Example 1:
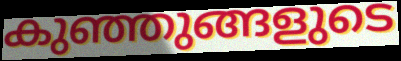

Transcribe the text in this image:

കുഞ്ഞുങ്ങളുടെ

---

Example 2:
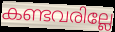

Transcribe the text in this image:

കണ്ടവരില്ലേ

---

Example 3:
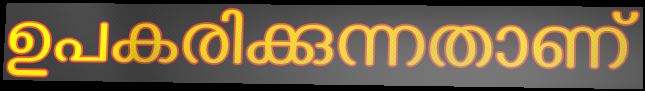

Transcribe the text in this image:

ഉപകരിക്കുന്നതാണ്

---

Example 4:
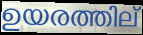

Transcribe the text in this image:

ഉയരത്തില്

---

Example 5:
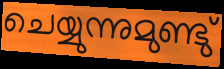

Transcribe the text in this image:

ചെയ്യുന്നുമുണ്ടു്